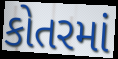
કોતરમાં